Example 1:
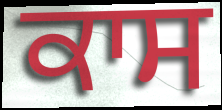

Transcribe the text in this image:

ਕਾਸ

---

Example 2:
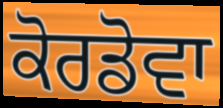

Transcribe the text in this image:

ਕੋਰਡੋਵਾ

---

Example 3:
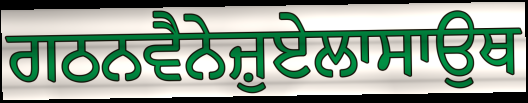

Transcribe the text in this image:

ਗਠਨਵੈਨੇਜ਼ੁਏਲਾਸਾਉਥ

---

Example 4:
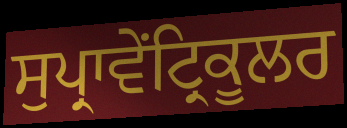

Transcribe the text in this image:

ਸੁਪ੍ਰਾਵੇਂਟ੍ਰਿਕੂਲਰ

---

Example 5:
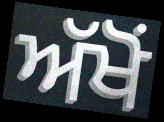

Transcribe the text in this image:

ਅੱਖੋਂ